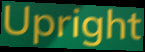
Upright